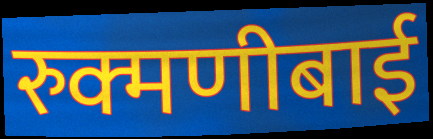
रुक्मणीबाई